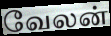
வேலன்